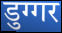
डुग्गर